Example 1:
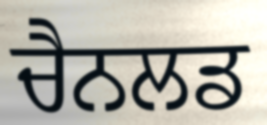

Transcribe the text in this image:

ਚੈਨਲਡ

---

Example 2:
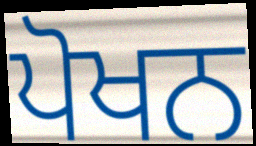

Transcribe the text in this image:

ਪੋਖਨ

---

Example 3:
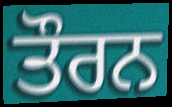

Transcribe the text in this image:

ਤੌਰਨ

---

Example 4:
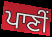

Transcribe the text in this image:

ਪਾਣੀਂ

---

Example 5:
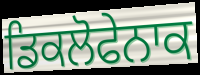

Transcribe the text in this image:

ਡਿਕਲੋਫੇਨਾਕ